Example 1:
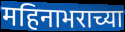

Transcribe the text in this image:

महिनाभराच्या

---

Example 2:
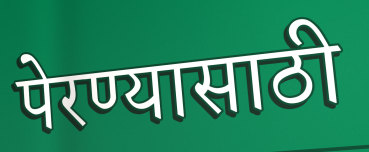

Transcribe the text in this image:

पेरण्यासाठी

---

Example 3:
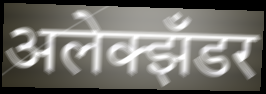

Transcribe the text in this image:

अलेक्झँडर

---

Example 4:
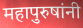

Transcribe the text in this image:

महापुरुषांनी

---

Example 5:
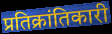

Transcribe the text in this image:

प्रतिक्रांतिकारी